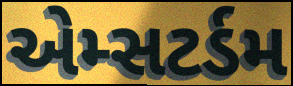
એમ્સટર્ડમ